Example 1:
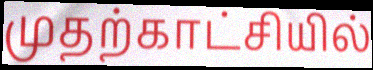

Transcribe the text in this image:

முதற்காட்சியில்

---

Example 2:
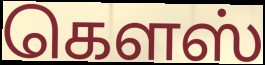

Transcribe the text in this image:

கௌஸ்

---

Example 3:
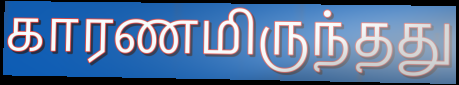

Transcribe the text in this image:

காரணமிருந்தது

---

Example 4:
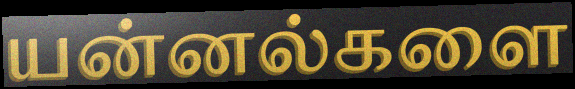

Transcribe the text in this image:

யன்னல்களை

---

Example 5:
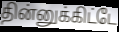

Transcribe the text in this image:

தின்னுக்கிட்டே